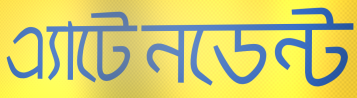
এ্যাটেনডেন্ট